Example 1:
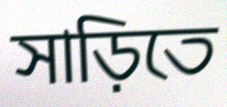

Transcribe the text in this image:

সাড়িতে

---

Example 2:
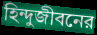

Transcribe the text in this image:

হিন্দুজীবনের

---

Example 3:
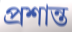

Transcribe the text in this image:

প্রশান্ত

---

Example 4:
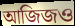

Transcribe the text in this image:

আজিজও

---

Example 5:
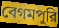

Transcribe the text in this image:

বেগমপুরি